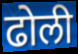
ढोली